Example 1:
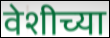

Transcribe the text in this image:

वेशीच्या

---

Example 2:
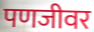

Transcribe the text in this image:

पणजीवर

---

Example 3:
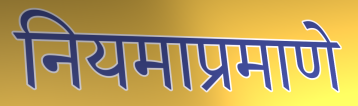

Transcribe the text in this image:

नियमाप्रमाणे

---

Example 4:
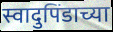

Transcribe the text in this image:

स्वादुपिंडाच्या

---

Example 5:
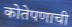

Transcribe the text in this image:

कोतेपणाची